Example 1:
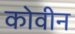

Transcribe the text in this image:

कोवीन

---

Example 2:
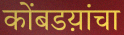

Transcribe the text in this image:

कोंबडय़ांचा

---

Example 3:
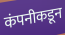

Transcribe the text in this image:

कंपनीकडून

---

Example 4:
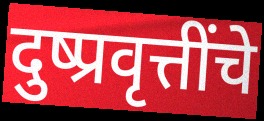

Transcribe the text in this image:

दुष्प्रवृत्तींचे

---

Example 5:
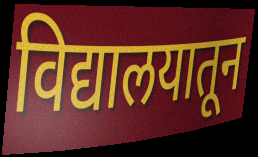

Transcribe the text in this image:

विद्यालयातून